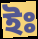
ইঃ